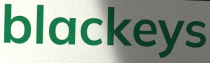
blackeys